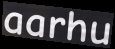
aarhu